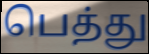
பெத்து